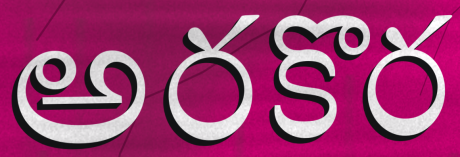
అరకొర